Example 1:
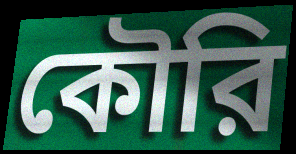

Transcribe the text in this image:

কৌরি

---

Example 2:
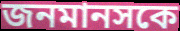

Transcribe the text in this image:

জনমানসকে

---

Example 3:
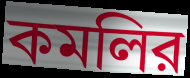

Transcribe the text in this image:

কমলির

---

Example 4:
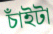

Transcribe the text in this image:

চাঁইটা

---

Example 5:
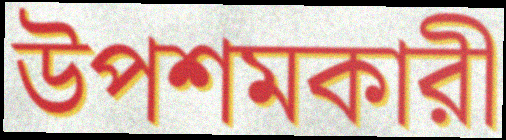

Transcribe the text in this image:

উপশমকারী